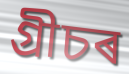
গ্ৰীচৰ